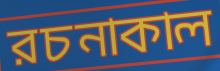
রচনাকাল